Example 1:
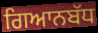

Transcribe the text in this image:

ਗਿਆਨਬੱਧ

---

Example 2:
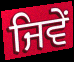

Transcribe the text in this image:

ਜਿਵੇੰ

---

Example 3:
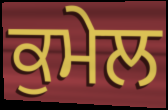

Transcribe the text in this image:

ਕੁਮੇਲ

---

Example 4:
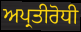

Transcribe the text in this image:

ਅਪ੍ਰਤੀਰੋਧੀ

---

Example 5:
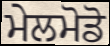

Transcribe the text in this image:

ਮੇਲਮੋਡੋ